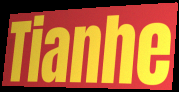
Tianhe